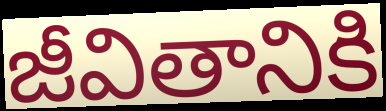
జీవితానికి